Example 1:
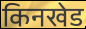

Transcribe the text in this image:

किनखेड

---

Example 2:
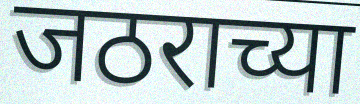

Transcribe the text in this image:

जठराच्या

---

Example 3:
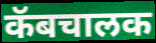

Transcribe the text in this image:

कॅबचालक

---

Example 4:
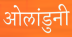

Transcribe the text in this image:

ओलांडुनी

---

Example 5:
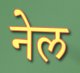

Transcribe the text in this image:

नेल